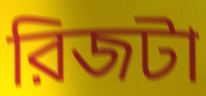
রিজটা